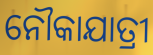
ନୌକାଯାତ୍ରୀ